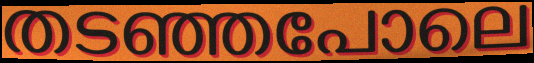
തടഞ്ഞപോലെ